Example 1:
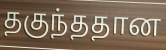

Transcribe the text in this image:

தகுந்ததான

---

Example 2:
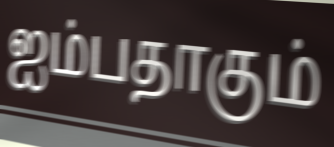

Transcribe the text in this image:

ஐம்பதாகும்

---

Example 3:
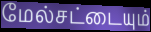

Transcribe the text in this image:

மேல்சட்டையும்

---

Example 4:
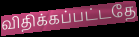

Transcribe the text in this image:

விதிக்கப்பட்டதே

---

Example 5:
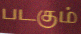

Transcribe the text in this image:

படகும்